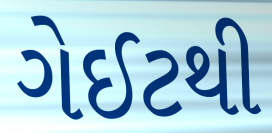
ગેઈટથી